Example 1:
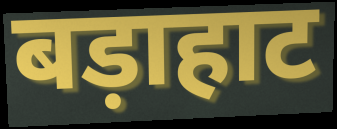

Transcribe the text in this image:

बड़ाहाट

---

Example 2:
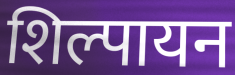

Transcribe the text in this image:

शिल्पायन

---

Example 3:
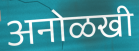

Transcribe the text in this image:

अनोळखी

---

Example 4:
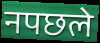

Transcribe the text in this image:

नपछले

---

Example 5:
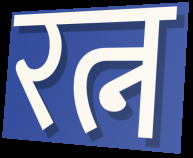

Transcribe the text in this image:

रत्न